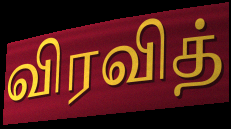
விரவித்